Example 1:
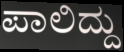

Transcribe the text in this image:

ಪಾಲಿದ್ದು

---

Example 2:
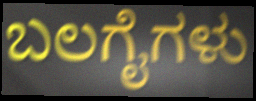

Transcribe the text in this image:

ಬಲಗೈಗಳು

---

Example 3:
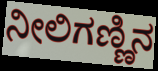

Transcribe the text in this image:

ನೀಲಿಗಣ್ಣಿನ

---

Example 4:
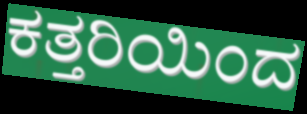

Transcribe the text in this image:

ಕತ್ತರಿಯಿಂದ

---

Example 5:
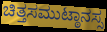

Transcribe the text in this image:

ಚಿತ್ತಸಮುಟ್ಠಾನಸ್ಸ